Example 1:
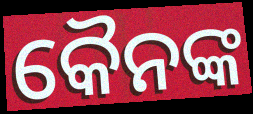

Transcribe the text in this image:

କୈନଙ୍କ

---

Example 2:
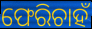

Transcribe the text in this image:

ଫେରିଚାହଁ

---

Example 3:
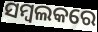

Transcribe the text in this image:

ସମ୍ବଲକରେ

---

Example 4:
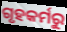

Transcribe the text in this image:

ଗୃହକର୍ମରୁ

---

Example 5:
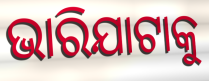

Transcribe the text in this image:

ଭାରିଯାଟାକୁ